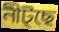
নীট্‌ছে